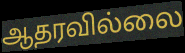
ஆதரவில்லை